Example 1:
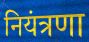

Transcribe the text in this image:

नियंत्रणा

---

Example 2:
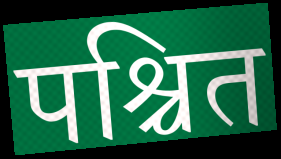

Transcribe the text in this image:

पश्चित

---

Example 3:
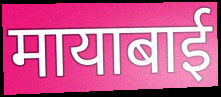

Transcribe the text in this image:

मायाबाई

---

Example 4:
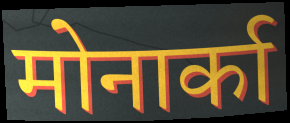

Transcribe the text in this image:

मोनार्का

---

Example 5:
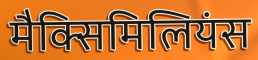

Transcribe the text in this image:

मैक्सिमिलियंस